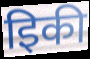
इिकी